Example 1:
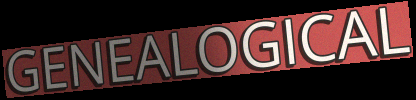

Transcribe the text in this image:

GENEALOGICAL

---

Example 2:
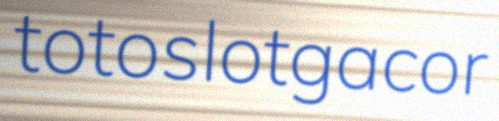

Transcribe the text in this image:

totoslotgacor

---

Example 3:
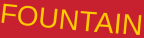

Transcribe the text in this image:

FOUNTAIN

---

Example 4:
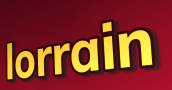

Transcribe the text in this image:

lorrain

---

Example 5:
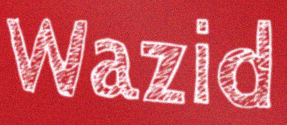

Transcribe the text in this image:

Wazid